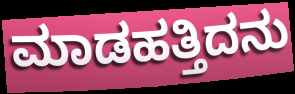
ಮಾಡಹತ್ತಿದನು